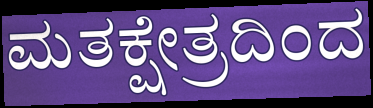
ಮತಕ್ಷೇತ್ರದಿಂದ